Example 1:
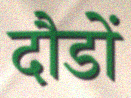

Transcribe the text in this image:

दौडों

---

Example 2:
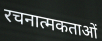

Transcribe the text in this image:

रचनात्मकताओं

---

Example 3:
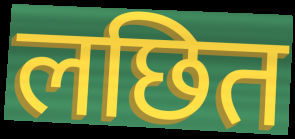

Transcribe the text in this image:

लछित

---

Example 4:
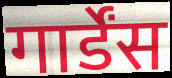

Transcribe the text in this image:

गार्डेंस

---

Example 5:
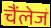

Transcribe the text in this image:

चैंलेज